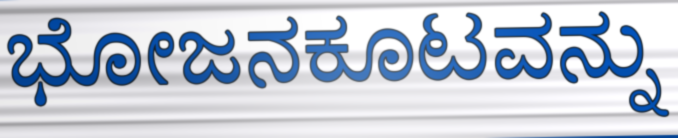
ಭೋಜನಕೂಟವನ್ನು